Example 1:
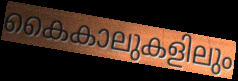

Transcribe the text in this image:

കൈകാലുകളിലും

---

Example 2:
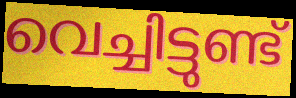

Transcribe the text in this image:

വെച്ചിട്ടുണ്ട്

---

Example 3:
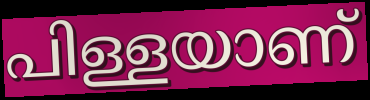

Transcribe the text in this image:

പിള്ളയാണ്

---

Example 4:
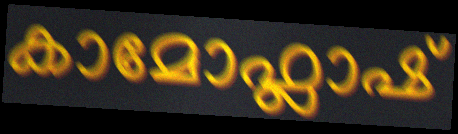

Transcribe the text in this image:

കാമോഫ്ലാഷ്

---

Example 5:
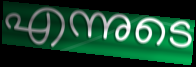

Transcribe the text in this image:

എന്നുടെ